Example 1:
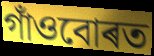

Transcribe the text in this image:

গাঁওবোৰত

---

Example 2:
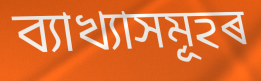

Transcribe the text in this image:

ব্যাখ্যাসমূহৰ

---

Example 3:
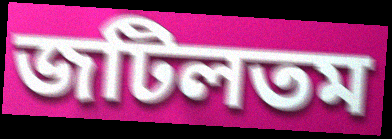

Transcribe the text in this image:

জটিলতম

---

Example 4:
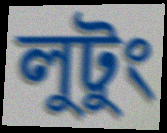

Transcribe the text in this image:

লুটুং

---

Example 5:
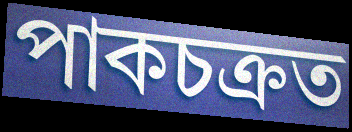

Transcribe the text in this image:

পাকচক্ৰত